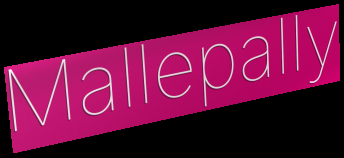
Mallepally